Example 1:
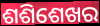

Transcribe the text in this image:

ଶଶିଶେଖର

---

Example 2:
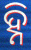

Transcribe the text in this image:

ହ୍ନି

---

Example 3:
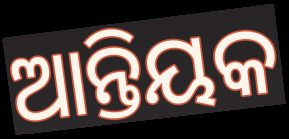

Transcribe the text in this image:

ଆନ୍ତିୟକ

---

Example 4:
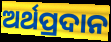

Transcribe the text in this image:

ଅର୍ଥପ୍ରଦାନ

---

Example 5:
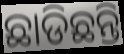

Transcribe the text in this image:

ଛାଡିଛନ୍ତି